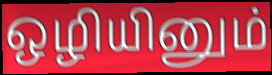
ஒழியினும்